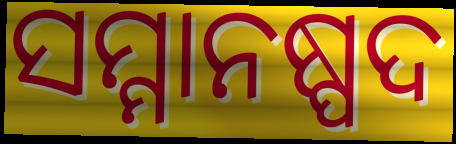
ସମ୍ମାନଷ୍ପଦ